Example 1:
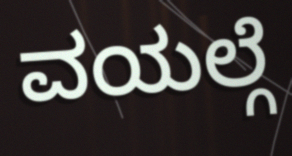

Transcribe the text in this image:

ವಯಲ್ಗೆ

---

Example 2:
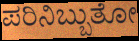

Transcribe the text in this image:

ಪರಿನಿಬ್ಬುತೋ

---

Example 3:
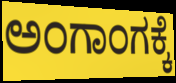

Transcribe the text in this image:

ಅಂಗಾಂಗಕ್ಕೆ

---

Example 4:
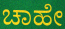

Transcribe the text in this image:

ಚಾಹೇ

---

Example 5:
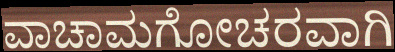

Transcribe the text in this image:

ವಾಚಾಮಗೋಚರವಾಗಿ